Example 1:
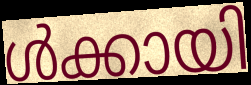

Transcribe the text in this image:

ൾക്കായി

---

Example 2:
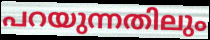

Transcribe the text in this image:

പറയുന്നതിലും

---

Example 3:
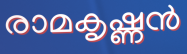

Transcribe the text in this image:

രാമകൃഷ്ണൻ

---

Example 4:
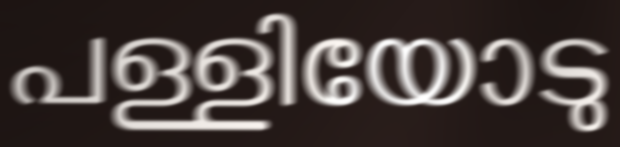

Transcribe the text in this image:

പള്ളിയോടു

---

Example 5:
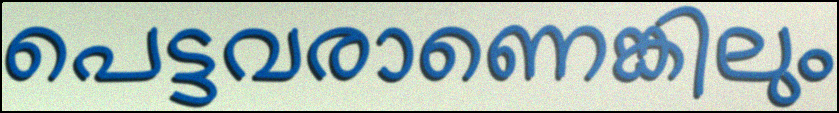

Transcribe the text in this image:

പെട്ടവരാണെങ്കിലും